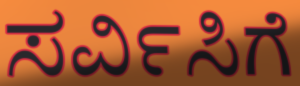
ಸರ್ವಿಸಿಗೆ